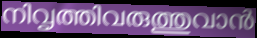
നിവൃത്തിവരുത്തുവാൻ